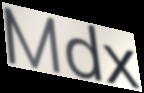
Mdx